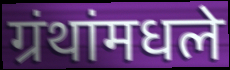
ग्रंथांमधले